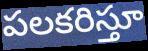
పలకరిస్తూ